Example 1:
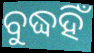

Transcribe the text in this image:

ବୁଦ୍ଧହିଁ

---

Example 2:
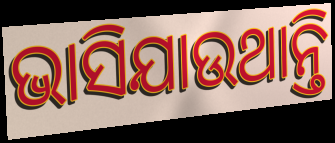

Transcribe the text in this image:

ଭାସିଯାଉଥାନ୍ତି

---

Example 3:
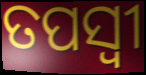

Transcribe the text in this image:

ତପସ୍ବୀ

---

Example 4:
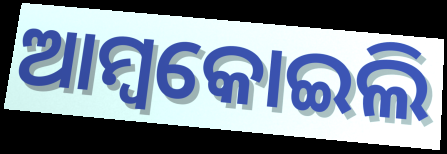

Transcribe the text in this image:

ଆମ୍ବକୋଇଲି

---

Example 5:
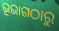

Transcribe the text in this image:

ଭୂଭାଗଠାରୁ